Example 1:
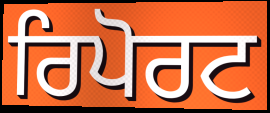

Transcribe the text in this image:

ਰਿਪੋਰਟ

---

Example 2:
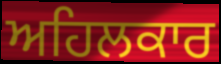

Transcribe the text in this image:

ਅਹਿਲਕਾਰ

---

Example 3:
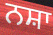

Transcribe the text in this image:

ਨਸ਼ਾ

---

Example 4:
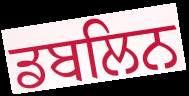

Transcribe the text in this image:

ਡਬਲਿਨ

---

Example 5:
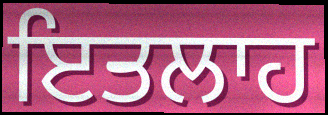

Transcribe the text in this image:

ਇਤਲਾਹ